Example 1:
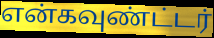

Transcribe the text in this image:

என்கவுண்ட்டர்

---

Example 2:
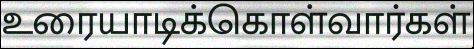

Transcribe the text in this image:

உரையாடிக்கொள்வார்கள்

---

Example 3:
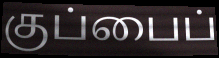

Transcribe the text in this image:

குப்பைப்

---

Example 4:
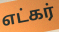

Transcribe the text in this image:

எட்கர்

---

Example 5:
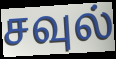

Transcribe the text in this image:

சவுல்